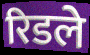
रिडले